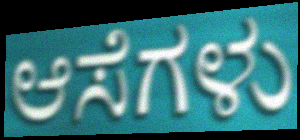
ಆಸೆಗಳು